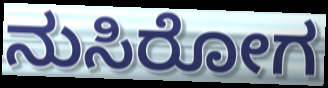
ನುಸಿರೋಗ